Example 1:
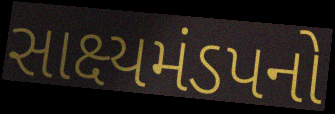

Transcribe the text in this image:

સાક્ષ્યમંડપનો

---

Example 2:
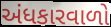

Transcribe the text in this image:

અંધકારવાળો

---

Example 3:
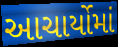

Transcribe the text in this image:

આચાર્યોમાં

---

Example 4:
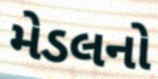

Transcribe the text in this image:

મેડલનો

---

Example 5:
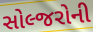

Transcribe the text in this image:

સોલ્જરોની